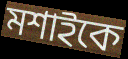
মশাইকে